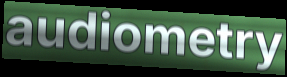
audiometry